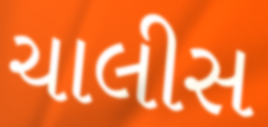
ચાલીસ